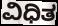
ವಿಧಿತ